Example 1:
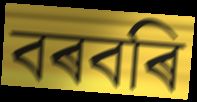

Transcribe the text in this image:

বৰবৰি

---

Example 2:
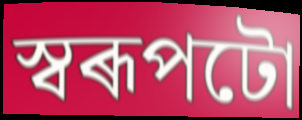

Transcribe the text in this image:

স্বৰূপটো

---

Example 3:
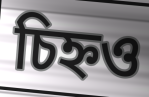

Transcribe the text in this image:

চিহ্নও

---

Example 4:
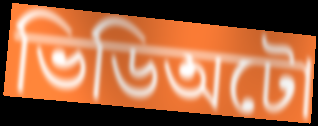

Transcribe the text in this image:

ভিডিঅটো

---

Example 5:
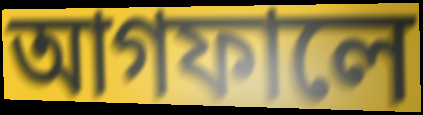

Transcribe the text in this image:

আগফালে